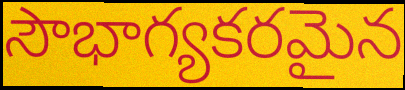
సౌభాగ్యకరమైన